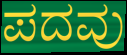
ಪದವು